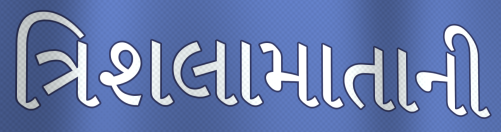
ત્રિશલામાતાની